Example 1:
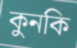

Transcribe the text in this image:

কুনকি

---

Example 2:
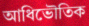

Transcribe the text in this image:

আধিভৌতিক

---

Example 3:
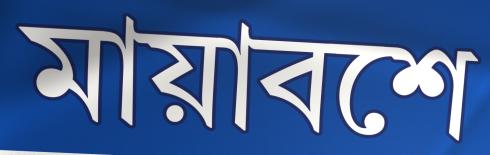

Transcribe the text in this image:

মায়াবশে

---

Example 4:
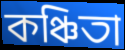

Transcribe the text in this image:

কঞ্চিতা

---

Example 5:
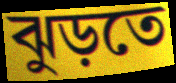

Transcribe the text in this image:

ঝুড়তে